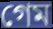
গেম